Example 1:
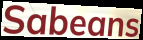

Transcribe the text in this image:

Sabeans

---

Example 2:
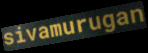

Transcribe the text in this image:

sivamurugan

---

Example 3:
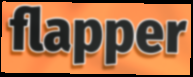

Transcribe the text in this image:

flapper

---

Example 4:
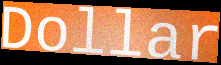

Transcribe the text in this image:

Dollar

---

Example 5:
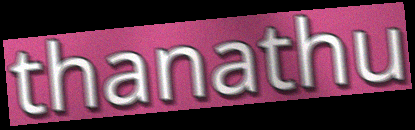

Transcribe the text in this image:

thanathu